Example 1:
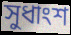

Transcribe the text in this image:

সুধাংশ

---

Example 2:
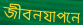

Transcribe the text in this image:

জীবনযাপনে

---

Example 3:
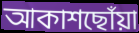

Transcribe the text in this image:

আকাশছোঁয়া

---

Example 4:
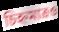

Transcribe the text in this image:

চিহ্নমাত্রও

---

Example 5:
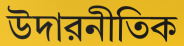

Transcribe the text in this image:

উদারনীতিক